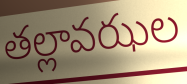
తల్లావఝల